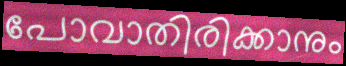
പോവാതിരിക്കാനും